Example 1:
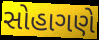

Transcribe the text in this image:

સોહાગણે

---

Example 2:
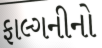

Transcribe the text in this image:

ફાલ્ગનીનો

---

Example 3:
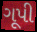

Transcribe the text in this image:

ગૂપી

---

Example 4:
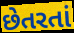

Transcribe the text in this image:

છેતરતાં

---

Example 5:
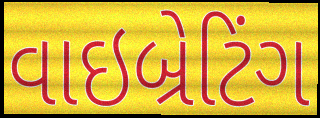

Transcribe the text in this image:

વાઇબ્રેટિંગ